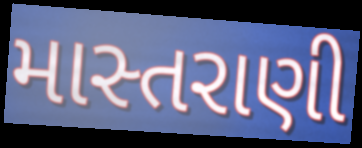
માસ્તરાણી